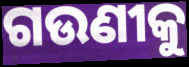
ଗଉଣୀକୁ